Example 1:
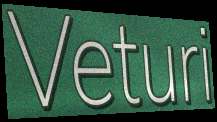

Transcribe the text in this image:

Veturi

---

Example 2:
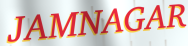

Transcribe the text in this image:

JAMNAGAR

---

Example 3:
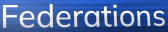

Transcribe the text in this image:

Federations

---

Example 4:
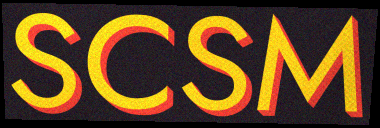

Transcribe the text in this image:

SCSM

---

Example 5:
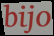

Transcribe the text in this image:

bijo